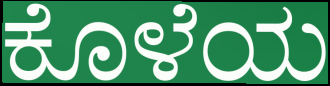
ಕೊಳೆಯ